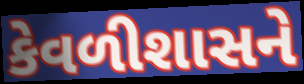
કેવળીશાસને